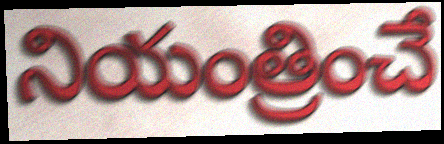
నియంత్రించే